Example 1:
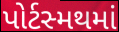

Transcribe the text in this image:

પોર્ટસ્મથમાં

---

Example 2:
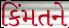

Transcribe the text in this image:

કિંમતને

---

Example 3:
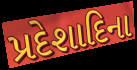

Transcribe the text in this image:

પ્રદેશાદિના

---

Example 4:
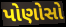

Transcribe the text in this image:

પોણોસો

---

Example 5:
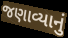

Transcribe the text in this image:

જણાવ્યાનું